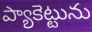
ప్యాకెట్టును